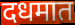
दधमात